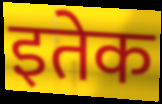
इतेक